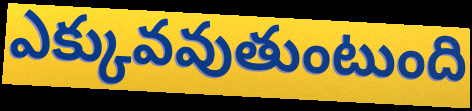
ఎక్కువవుతుంటుంది